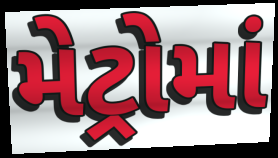
મેટ્રોમાં